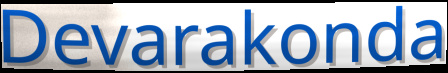
Devarakonda